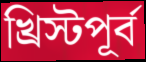
খ্রিস্টপূর্ব